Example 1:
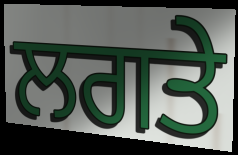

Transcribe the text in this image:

ਲਗਤੇ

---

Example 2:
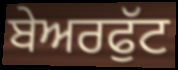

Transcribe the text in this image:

ਬੇਅਰਫੁੱਟ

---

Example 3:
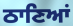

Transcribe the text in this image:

ਠਾਣਿਆਂ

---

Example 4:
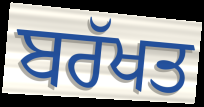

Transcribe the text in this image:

ਬਰੱਖਤ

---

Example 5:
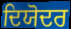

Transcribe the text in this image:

ਦਿਯੋਦਰ